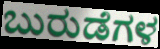
ಬುರುಡೆಗಳ